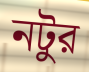
নটুর